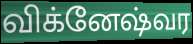
விக்னேஷ்வர